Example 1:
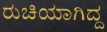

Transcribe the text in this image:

ರುಚಿಯಾಗಿದ್ದ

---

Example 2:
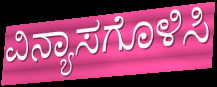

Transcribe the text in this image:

ವಿನ್ಯಾಸಗೊಳಿಸಿ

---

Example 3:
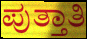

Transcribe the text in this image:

ಪುತ್ತಾತಿ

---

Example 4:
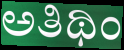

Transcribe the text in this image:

ಅತಿಥಿಂ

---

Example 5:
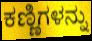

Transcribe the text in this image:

ಕಣ್ಣಿಗಳನ್ನು